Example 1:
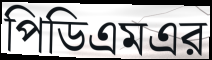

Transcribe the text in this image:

পিডিএমএর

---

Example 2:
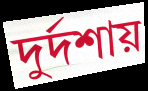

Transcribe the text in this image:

দুর্দশায়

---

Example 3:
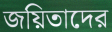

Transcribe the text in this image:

জয়িতাদের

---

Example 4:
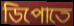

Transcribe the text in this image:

ডিপোতে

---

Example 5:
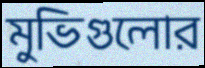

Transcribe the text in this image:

মুভিগুলোর